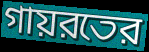
গায়রতের